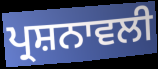
ਪ੍ਰਸ਼ਨਾਵਲੀ